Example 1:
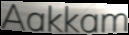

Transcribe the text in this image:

Aakkam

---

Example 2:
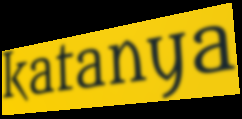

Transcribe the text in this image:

katanya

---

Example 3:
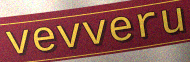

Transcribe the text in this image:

vevveru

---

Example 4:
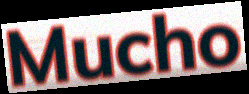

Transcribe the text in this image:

Mucho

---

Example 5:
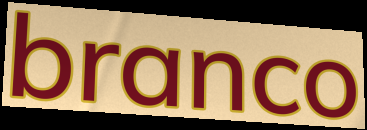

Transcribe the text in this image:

branco